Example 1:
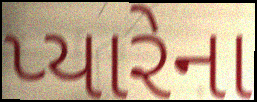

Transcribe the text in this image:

પ્યારેના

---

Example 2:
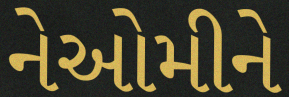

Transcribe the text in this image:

નેઓમીને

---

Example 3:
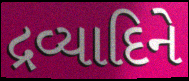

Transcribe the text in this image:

દ્રવ્યાદિને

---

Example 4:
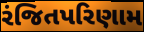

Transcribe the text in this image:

રંજિતપરિણામ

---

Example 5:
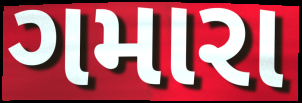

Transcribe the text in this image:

ગમારા